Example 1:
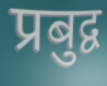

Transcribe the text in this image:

प्रबुद्व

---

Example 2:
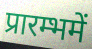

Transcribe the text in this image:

प्रारम्भमें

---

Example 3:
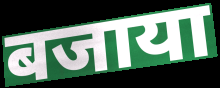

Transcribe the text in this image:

बजाया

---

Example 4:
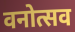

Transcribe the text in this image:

वनोत्सव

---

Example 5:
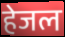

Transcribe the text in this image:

हेजल